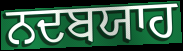
ਨਦਬਯਾਹ